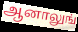
ஆனாலுங்